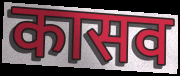
कासव